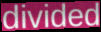
divided